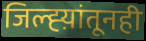
जिल्ह्य़ांतूनही